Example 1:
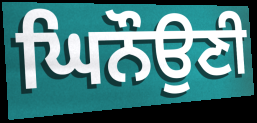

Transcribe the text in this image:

ਘਿਨੌਉਣੀ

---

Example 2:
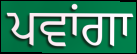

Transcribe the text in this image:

ਪਵਾਂਗਾ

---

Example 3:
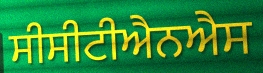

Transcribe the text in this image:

ਸੀਸੀਟੀਐਨਐਸ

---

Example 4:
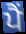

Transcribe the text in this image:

ਪੈਂ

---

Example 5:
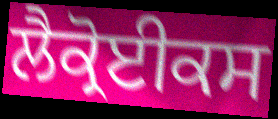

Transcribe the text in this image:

ਲੈਕ੍ਰੋਈਕਸ